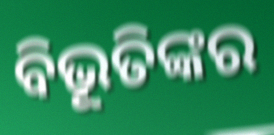
ବିଭୂତିଙ୍କର